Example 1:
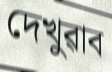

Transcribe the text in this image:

দেখুৱাব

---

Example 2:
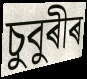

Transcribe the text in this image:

চুবুৰীৰ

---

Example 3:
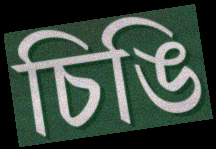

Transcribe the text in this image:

চিঙি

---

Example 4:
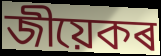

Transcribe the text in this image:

জীয়েকৰ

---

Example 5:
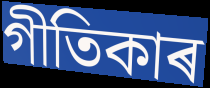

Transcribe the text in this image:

গীতিকাৰ